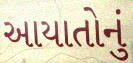
આયાતોનું